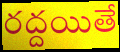
రద్దయితే